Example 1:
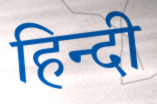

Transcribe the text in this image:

हिन्‍दी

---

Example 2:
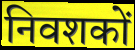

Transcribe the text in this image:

निवशकों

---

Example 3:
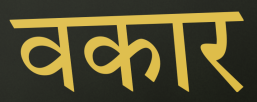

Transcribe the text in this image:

वकार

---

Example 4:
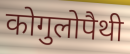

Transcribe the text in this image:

कोगुलोपैथी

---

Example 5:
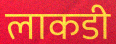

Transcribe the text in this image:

लाकडी